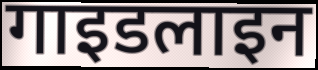
गाइडलाइन